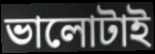
ভালোটাই